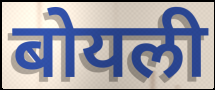
बोयली